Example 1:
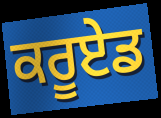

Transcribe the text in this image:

ਕਰੂਏਡ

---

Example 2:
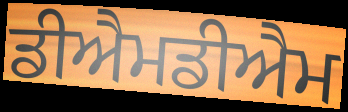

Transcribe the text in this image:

ਡੀਐਮਡੀਐਮ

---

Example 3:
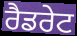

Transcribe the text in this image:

ਰੈਡਰੇਟ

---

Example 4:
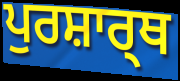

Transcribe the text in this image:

ਪੁਰਸ਼ਾਰ੍ਥ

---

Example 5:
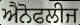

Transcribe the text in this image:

ਐਨੋਫਲੀਜ